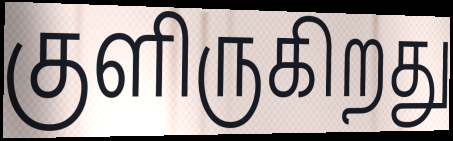
குளிருகிறது